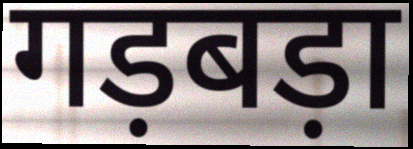
गड़बड़ा